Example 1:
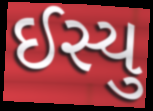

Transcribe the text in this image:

ઈસ્યુ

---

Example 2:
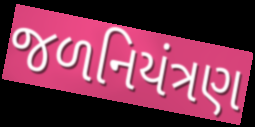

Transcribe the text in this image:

જળનિયંત્રણ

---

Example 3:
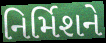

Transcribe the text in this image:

નિર્મિશને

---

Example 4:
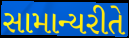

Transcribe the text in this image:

સામાન્યરીતે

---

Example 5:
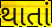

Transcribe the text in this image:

થાતાં